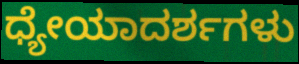
ಧ್ಯೇಯಾದರ್ಶಗಳು